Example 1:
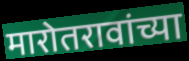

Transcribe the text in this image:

मारोतरावांच्या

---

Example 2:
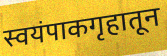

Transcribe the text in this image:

स्वयंपाकगृहातून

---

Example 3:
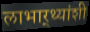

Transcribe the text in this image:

लाभार्थ्यांशी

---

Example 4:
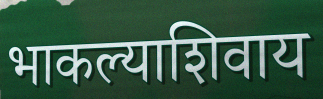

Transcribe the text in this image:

भाकल्याशिवाय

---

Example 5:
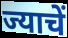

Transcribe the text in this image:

ज्याचें